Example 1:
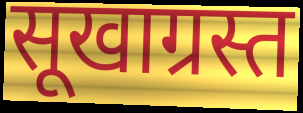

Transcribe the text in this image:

सूखाग्रस्त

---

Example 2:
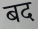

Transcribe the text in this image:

बद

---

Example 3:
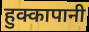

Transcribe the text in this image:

हुक्कापानी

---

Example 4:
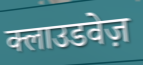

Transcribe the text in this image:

क्लाउडवेज़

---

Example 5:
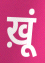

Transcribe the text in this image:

ख़ूं